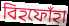
বিহফোঁহা